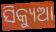
ସିକ୍ୟୁଆ